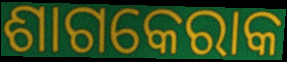
ଶାଗକେରାକ